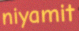
niyamit